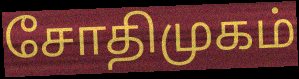
சோதிமுகம்